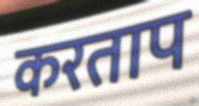
करताप